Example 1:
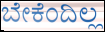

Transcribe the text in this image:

ಬೇಕೆಂದಿಲ್ಲ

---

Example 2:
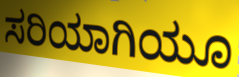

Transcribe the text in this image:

ಸರಿಯಾಗಿಯೂ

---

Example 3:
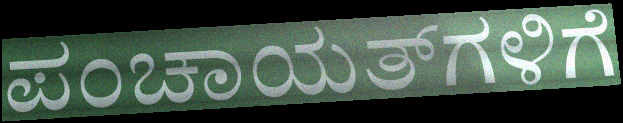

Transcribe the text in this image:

ಪಂಚಾಯತ್‌ಗಳಿಗೆ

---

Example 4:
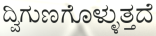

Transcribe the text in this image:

ದ್ವಿಗುಣಗೊಳ್ಳುತ್ತದೆ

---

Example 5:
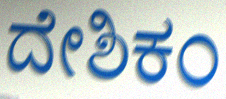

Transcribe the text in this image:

ದೇಶಿಕಂ